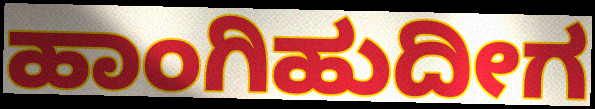
ಹಾಂಗಿಹುದೀಗ